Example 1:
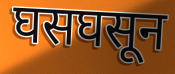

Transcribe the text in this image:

घसघसून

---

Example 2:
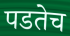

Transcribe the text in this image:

पडतेच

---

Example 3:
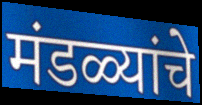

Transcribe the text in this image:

मंडळ्यांचे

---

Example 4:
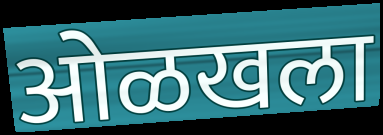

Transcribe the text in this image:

ओळखला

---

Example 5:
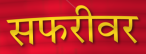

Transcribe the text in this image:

सफरीवर